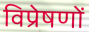
विप्रेषणों